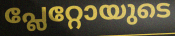
പ്ലേറ്റോയുടെ